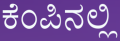
ಕೆಂಪಿನಲ್ಲಿ